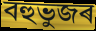
বহুভুজৰ